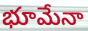
భూమేనా